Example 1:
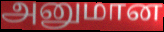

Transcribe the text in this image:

அனுமான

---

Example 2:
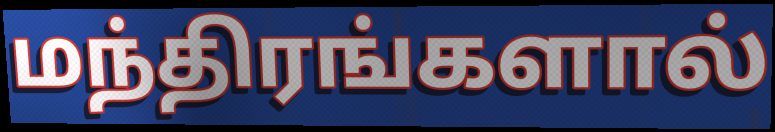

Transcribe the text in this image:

மந்திரங்களால்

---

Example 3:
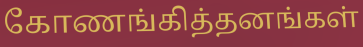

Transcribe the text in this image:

கோணங்கித்தனங்கள்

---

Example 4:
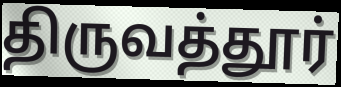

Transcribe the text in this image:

திருவத்தூர்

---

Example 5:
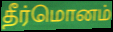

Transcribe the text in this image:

தீர்மொனம்